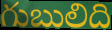
గుబులిది